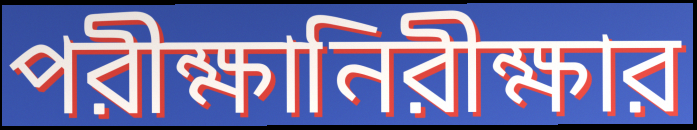
পরীক্ষানিরীক্ষার